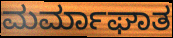
ಮರ್ಮಾಘಾತ